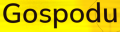
Gospodu